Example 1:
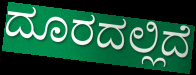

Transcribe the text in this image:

ದೂರದಲ್ಲಿದೆ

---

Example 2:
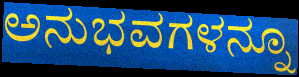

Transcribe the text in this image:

ಅನುಭವಗಳನ್ನೂ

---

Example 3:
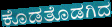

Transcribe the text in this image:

ಕೊಡತೊಡಗಿದ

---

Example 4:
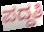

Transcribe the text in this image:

ಪದ್ದತಿ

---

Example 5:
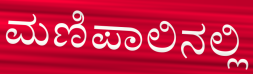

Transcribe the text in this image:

ಮಣಿಪಾಲಿನಲ್ಲಿ